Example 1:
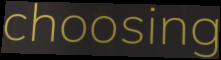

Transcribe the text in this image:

choosing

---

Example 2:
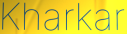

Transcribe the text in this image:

Kharkar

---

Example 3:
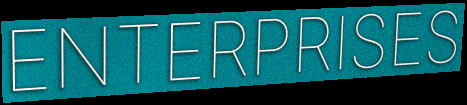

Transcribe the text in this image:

ENTERPRISES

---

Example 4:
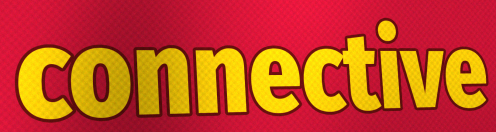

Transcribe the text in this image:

connective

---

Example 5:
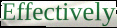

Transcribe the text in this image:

Effectively